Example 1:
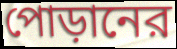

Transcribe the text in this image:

পোড়ানের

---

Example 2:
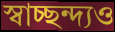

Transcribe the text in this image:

স্বাচ্ছন্দ্যও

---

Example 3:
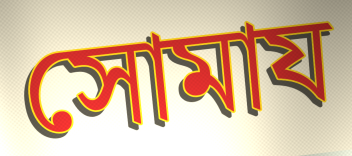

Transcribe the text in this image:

সোমায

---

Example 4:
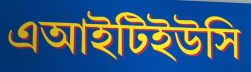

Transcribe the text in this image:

এআইটিইউসি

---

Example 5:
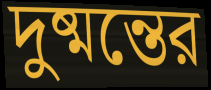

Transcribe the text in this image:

দুষ্মন্তের